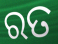
ରତ